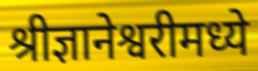
श्रीज्ञानेश्वरीमध्ये